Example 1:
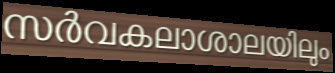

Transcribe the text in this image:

സർവകലാശാലയിലും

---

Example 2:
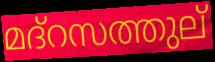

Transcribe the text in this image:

മദ്റസത്തുല്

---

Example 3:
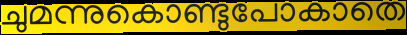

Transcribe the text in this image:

ചുമന്നുകൊണ്ടുപോകാതെ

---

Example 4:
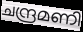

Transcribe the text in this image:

ചന്ദ്രമണി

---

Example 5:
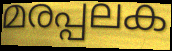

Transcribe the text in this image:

മരപ്പലക